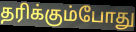
தரிக்கும்போது